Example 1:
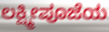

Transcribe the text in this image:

ಲಕ್ಷ್ಮೀಪೂಜೆಯ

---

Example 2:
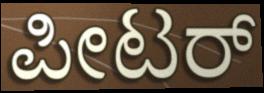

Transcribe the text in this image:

ಪೀಟರ್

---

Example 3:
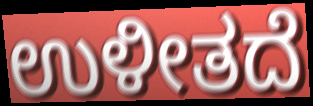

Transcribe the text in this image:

ಉಳೀತದೆ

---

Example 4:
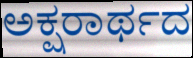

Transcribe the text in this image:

ಅಕ್ಷರಾರ್ಥದ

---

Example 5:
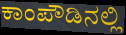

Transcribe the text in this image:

ಕಾಂಪೌಡಿನಲ್ಲಿ